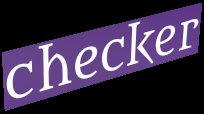
checker